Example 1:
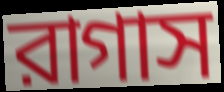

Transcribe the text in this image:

রাগাস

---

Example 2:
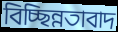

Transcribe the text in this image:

বিচ্ছিন্নতাবাদ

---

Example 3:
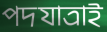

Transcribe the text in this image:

পদযাত্রাই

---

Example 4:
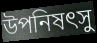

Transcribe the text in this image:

উপনিষৎসু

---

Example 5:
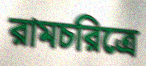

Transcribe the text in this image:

রামচরিত্রে